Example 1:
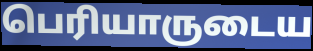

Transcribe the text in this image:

பெரியாருடைய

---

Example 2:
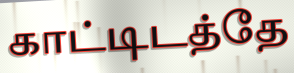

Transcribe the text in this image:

காட்டிடத்தே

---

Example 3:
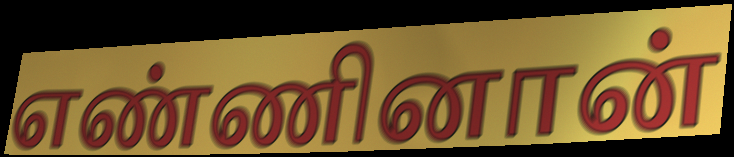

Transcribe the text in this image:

எண்ணினான்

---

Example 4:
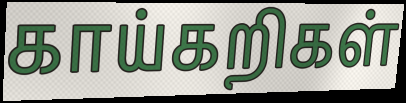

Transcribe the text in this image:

காய்கறிகள்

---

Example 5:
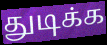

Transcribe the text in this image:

துடிக்க